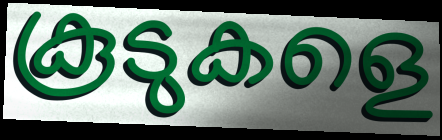
കൂടുകളെ